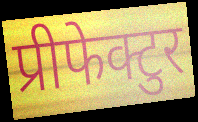
प्रीफेक्टुर